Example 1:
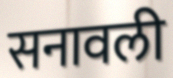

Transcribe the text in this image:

सनावली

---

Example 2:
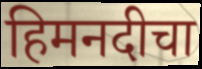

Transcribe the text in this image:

हिमनदीचा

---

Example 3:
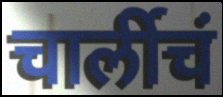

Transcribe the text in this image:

चार्लीचं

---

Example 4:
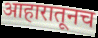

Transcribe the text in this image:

आहारातूनच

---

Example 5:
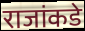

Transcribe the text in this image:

राजांकडे